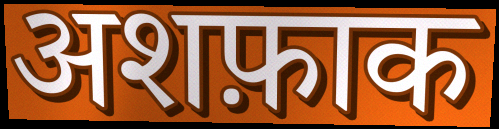
अशफ़ाक